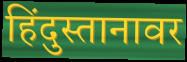
हिंदुस्तानावर